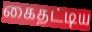
கைதட்டிய